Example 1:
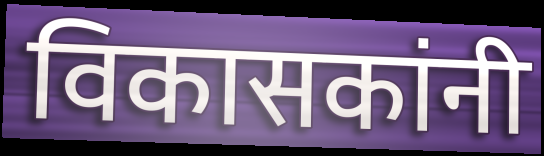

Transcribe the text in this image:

विकासकांनी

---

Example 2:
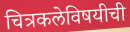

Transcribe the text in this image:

चित्रकलेविषयीची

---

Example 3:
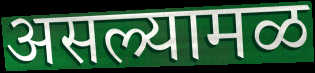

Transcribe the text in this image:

असल्यामळ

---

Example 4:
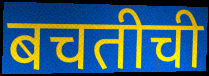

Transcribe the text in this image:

बचतीची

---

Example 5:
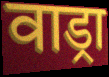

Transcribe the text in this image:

वाड्रा